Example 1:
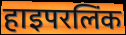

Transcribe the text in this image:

हाइपरलिंक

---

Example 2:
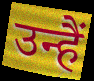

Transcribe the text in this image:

उन्‍हैं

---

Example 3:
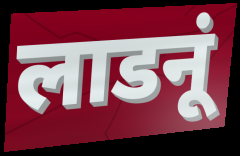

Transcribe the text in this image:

लाडनूं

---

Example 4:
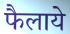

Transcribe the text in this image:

फैलाये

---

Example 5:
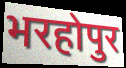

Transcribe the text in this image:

भरहोपुर